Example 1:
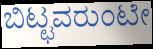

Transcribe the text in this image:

ಬಿಟ್ಟವರುಂಟೇ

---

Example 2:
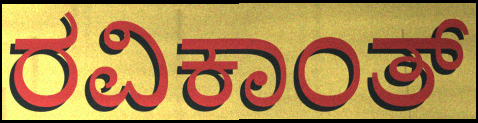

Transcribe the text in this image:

ರವಿಕಾಂತ್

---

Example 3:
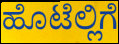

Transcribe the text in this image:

ಹೊಟೆಲ್ಲಿಗೆ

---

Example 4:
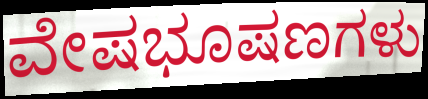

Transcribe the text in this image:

ವೇಷಭೂಷಣಗಳು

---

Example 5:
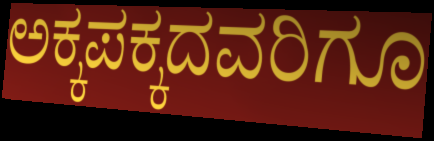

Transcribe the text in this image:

ಅಕ್ಕಪಕ್ಕದವರಿಗೂ